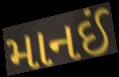
માનઈં